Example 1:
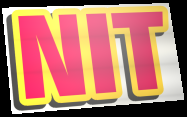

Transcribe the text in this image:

NIT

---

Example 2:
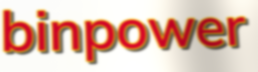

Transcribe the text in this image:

binpower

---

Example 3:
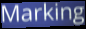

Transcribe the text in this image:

Marking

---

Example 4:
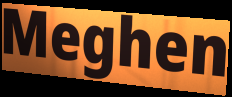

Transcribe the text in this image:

Meghen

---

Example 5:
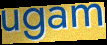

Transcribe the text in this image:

ugam